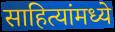
साहित्यांमध्ये